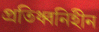
প্রতিধ্বনিহীন